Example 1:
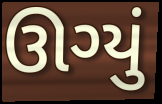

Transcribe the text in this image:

ઊગ્યું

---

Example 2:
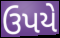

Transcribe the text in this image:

ઉપયે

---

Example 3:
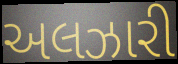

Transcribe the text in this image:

અલઝારી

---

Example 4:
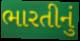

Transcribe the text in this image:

ભારતીનું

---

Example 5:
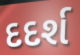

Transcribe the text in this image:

દદર્શ